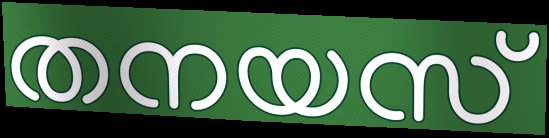
തനയസ്